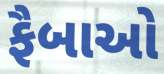
ફૈબાઓ